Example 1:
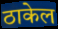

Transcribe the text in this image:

ठाकेल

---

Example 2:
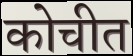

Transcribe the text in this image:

कोचीत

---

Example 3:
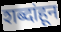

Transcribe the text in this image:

शब्दांहून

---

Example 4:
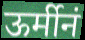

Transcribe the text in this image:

ऊर्मीनं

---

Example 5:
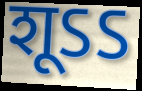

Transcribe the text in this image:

शूऽऽ